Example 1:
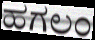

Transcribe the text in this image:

ಹಗಲಂ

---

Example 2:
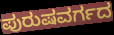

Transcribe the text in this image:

ಪುರುಷವರ್ಗದ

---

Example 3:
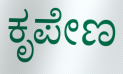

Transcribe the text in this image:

ಕೃಪೇಣ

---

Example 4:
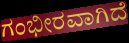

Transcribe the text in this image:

ಗಂಭೀರವಾಗಿದೆ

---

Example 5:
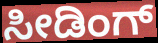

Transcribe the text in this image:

ಸೀಡಿಂಗ್